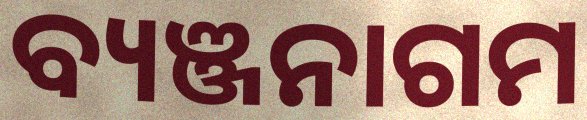
ବ୍ୟଞ୍ଜନାଗମ